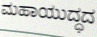
ಮಹಾಯುದ್ಧದ